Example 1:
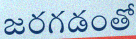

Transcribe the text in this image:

జరగడంతో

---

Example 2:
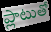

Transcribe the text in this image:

ప్లాటుతో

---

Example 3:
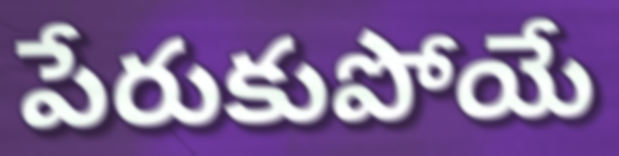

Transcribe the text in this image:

పేరుకుపోయే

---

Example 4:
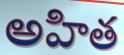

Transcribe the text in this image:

అహిత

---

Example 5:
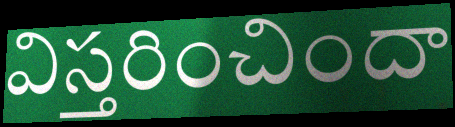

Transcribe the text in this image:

విస్తరించిందా